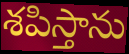
శపిస్తాను